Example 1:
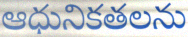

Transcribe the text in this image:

ఆధునికతలను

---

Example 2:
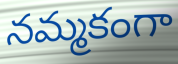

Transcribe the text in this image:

నమ్మకంగా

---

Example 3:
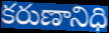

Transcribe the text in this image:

కరుణానిధి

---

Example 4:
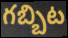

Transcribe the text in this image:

గబ్బిట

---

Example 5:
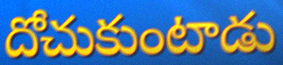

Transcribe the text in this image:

దోచుకుంటాడు